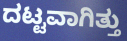
ದಟ್ಟವಾಗಿತ್ತು